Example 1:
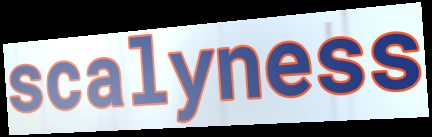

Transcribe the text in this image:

scalyness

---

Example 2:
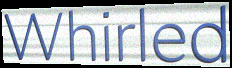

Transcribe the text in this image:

Whirled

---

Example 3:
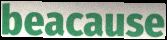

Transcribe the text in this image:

beacause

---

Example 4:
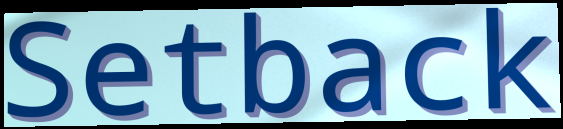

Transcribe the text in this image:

Setback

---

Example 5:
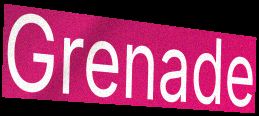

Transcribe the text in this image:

Grenade